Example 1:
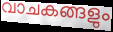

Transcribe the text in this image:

വാചകങ്ങളും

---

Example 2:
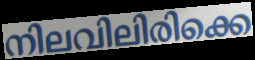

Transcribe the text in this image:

നിലവിലിരിക്കെ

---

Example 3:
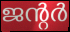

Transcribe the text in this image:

ജന്റർ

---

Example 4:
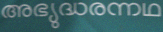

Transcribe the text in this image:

അഭ്യുദ്ധരന്നഥ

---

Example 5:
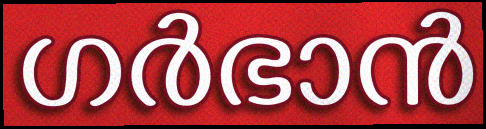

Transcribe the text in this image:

ഗർഭാൻ